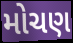
મોચણ